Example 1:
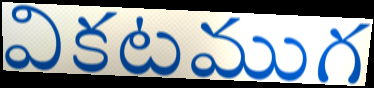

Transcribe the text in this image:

వికటముగ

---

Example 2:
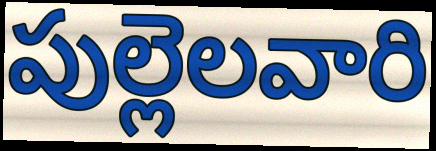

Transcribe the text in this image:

పుల్లెలవారి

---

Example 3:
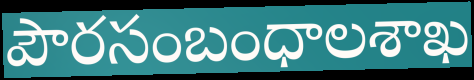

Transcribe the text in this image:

పౌరసంబంధాలశాఖ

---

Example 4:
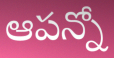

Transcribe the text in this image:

ఆపన్నో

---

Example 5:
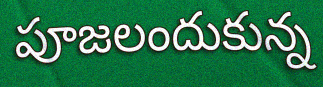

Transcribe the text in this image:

పూజలందుకున్న